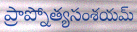
ప్రాప్నోత్యసంశయమ్